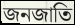
জনজাতি